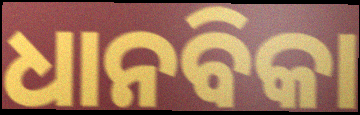
ଧାନବିକା